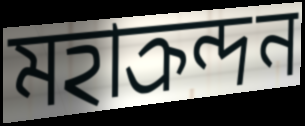
মহাক্রন্দন